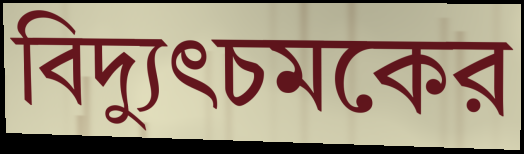
বিদ্যুৎচমকের